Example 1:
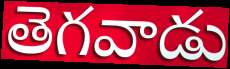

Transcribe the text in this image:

తెగవాడు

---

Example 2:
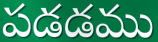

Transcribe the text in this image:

పడడము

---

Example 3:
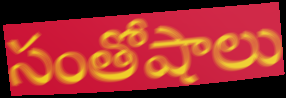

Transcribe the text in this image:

సంతోషాలు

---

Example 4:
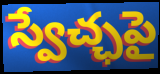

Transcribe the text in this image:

స్వేచ్ఛపై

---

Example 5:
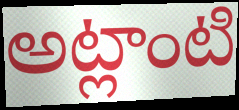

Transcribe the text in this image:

అట్లాంటి